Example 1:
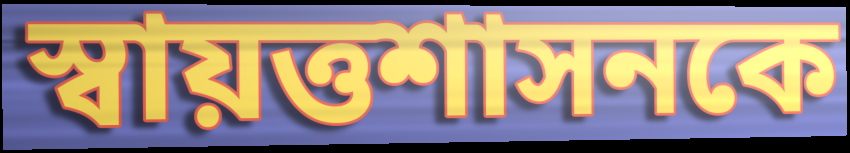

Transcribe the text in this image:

স্বায়ত্তশাসনকে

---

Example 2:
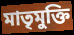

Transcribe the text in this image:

মাতৃমুক্তি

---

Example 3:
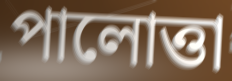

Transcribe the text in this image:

পালোত্তা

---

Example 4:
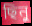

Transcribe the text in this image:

ছিনু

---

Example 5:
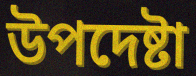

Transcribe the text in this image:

উপদেষ্টা